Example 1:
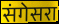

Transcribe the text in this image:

संगेसरा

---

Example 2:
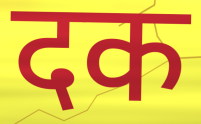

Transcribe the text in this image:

दक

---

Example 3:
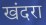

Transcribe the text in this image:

खंदरा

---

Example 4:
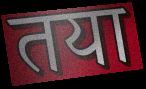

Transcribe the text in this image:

तया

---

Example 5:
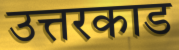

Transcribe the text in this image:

उत्तरकाड